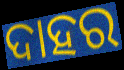
ଦାହର